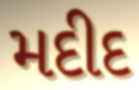
મદીદ